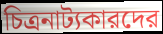
চিত্রনাট্যকারদের